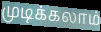
முடிக்கலாம்